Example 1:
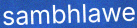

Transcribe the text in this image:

sambhlawe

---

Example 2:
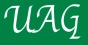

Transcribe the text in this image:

UAG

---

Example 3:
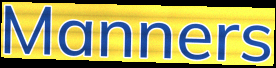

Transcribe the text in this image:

Manners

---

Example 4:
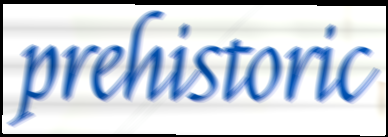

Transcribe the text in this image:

prehistoric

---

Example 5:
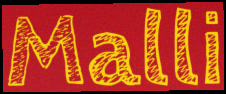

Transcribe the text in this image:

Malli